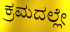
ಕ್ರಮದಲ್ಲೇ